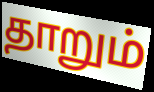
தாறும்